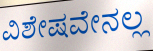
ವಿಶೇಷವೇನಲ್ಲ